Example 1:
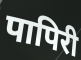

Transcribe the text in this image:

पापिरी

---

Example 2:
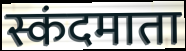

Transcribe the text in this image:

स्‍कंदमाता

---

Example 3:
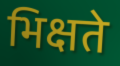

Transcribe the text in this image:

भिक्षते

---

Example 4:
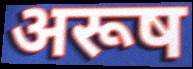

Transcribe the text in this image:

अरूष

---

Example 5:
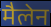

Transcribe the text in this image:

मैलेन